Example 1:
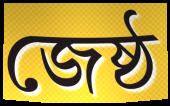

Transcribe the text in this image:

জেষ্ঠ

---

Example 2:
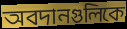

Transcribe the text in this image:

অবদানগুলিকে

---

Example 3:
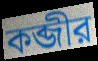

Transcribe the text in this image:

কব্জীর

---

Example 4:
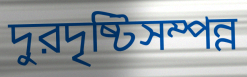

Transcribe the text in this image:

দুরদৃষ্টিসম্পন্ন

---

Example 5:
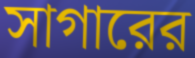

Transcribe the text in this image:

সাগারের